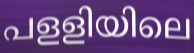
പളളിയിലെ